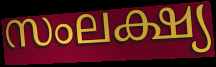
സംലക്ഷ്യ